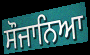
ਸੌਜਾਨਿਆ